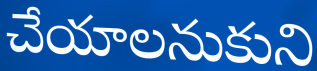
చేయాలనుకుని